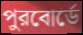
পুরবোর্ডে